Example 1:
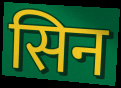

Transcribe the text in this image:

सिन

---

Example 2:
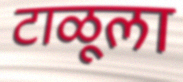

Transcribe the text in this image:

टाळूला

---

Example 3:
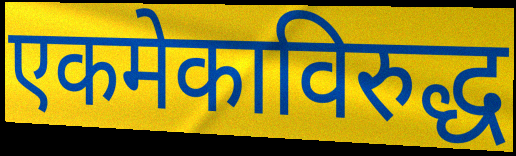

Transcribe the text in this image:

एकमेकाविरुद्ध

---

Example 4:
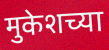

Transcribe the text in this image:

मुकेशच्या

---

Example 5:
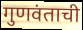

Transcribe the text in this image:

गुणवंताची